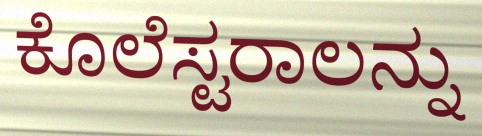
ಕೊಲೆಸ್ಟರಾಲನ್ನು